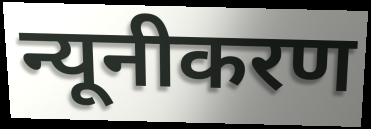
न्यूनीकरण